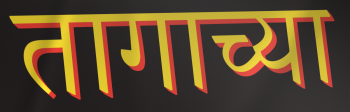
तागाच्या